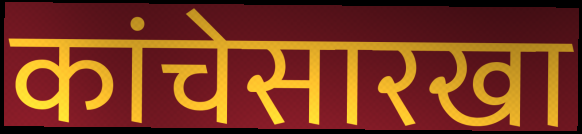
कांचेसारखा